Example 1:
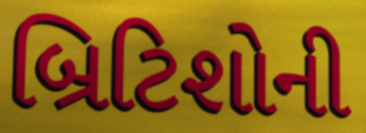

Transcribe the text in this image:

બ્રિટિશોની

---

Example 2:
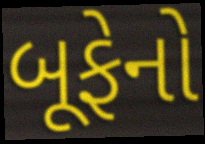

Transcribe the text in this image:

બૂફેનો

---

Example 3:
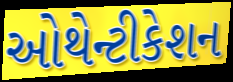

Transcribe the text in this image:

ઓથેન્ટીકેશન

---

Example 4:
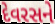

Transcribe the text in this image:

દેવરસને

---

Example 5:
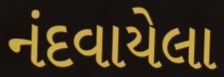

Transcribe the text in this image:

નંદવાયેલા